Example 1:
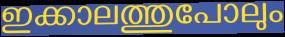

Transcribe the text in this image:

ഇക്കാലത്തുപോലും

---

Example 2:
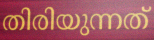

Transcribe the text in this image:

തിരിയുന്നത്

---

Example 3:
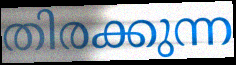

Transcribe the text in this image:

തിരക്കുന്ന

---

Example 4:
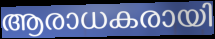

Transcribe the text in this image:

ആരാധകരായി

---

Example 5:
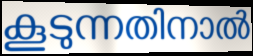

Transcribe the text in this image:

കൂടുന്നതിനാൽ